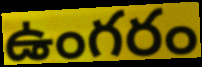
ఉంగరం